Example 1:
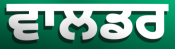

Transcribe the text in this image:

ਵਾਲਡਰ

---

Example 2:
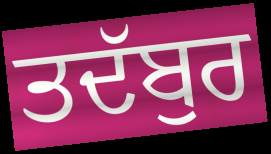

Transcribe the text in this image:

ਤਦੱਬੁਰ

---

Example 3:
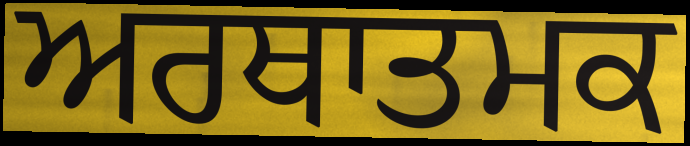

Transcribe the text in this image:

ਅਰਥਾਤਮਕ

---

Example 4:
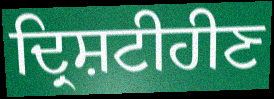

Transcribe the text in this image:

ਦ੍ਰਿਸ਼ਟੀਹੀਣ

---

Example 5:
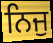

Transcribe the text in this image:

ਨਿਜੁ